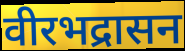
वीरभद्रासन